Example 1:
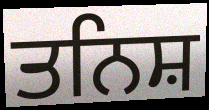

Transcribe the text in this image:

ਤਨਿਸ਼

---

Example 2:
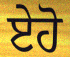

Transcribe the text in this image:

ਏਹੋ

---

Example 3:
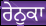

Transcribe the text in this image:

ਰੇਨੁਕਾ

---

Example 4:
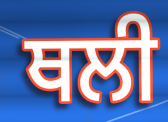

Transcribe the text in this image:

ਥਲੀ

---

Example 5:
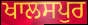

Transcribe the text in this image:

ਖਾਲਸਪੁਰ